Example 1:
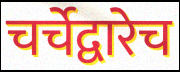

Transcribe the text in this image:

चर्चेद्वारेच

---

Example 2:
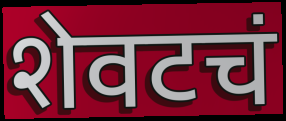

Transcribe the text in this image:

शेवटचं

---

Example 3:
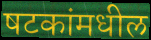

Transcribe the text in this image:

षटकांमधील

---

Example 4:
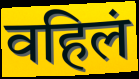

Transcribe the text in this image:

वहिलं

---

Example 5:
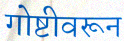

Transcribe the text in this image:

गोष्टीवरून